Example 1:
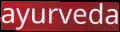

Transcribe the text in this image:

ayurveda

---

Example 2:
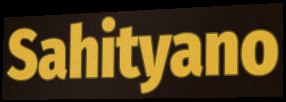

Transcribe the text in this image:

Sahityano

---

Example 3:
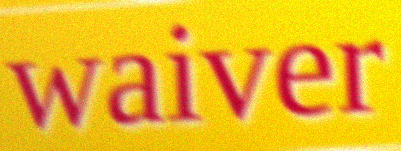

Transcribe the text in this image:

waiver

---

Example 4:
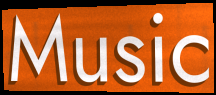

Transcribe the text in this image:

Music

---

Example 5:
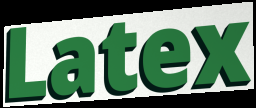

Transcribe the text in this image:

Latex